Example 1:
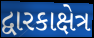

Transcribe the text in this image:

દ્વારકાક્ષેત્ર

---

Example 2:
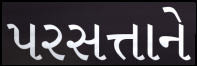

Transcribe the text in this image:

પરસત્તાને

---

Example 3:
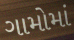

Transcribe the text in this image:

ગામોમાં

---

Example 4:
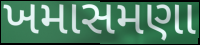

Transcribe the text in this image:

ખમાસમણા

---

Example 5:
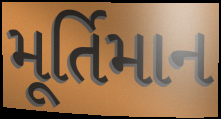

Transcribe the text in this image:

મૂર્તિમાન